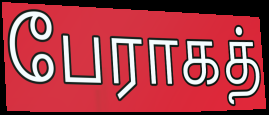
பேராகத்